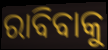
ରାବିବାକୁ